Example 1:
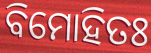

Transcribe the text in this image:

ବିମୋହିତଃ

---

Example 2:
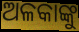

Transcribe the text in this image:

ଅଳକାଙ୍କୁ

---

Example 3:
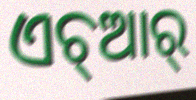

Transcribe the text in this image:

ଏଚ୍ଆର୍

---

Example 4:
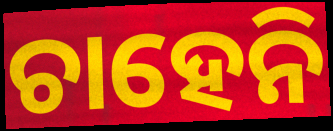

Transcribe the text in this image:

ଚାହେନି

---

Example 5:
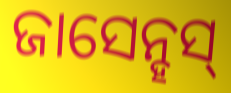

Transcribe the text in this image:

ଜାସେନ୍ହସ୍